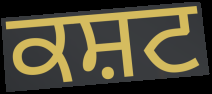
ਕਸ਼ਟ